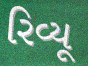
રિવ્યૂ